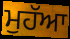
ਮੁਹੱਆ